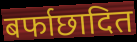
बर्फाछादित